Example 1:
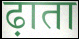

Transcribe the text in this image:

ढ़ाता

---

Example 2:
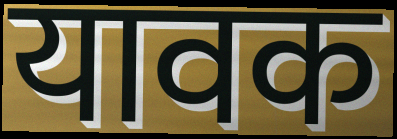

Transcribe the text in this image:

यावक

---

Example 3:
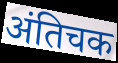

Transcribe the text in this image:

अंतिचक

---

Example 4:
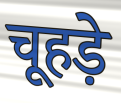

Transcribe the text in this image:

चूहड़े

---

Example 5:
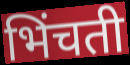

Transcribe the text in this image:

भिंचती